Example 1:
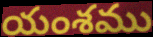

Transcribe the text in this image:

యంశము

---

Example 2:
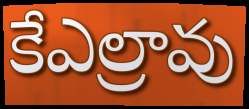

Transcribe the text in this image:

కేఎల్రావు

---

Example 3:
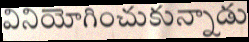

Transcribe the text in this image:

వినియోగించుకున్నాడు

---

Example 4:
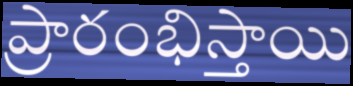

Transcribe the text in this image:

ప్రారంభిస్తాయి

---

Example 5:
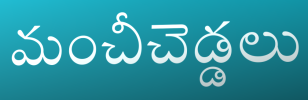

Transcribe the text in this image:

మంచీచెడ్డలు